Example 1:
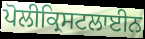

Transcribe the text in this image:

ਪੋਲੀਕ੍ਰਿਸਟਲਾਈਨ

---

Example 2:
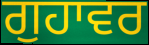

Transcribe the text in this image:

ਗੁਹਾਵਰ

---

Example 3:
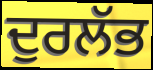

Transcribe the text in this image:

ਦੁਰਲੱਭ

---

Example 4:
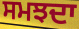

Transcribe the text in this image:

ਸਮਝਦਾ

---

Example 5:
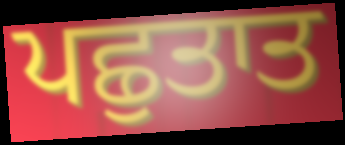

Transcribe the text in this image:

ਪਛੁਤਾਤ